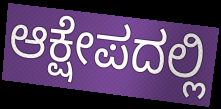
ಆಕ್ಷೇಪದಲ್ಲಿ